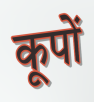
कूपों